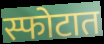
स्फोटात